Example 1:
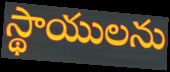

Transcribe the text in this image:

స్థాయులను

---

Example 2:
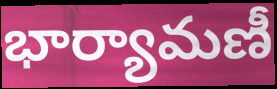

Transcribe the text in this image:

భార్యామణీ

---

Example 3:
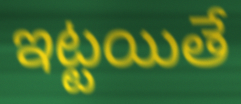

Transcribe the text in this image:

ఇట్టయితే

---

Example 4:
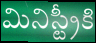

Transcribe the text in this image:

మినిస్ట్రీకి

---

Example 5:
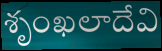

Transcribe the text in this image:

శృంఖలాదేవి